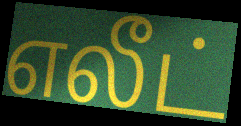
எலீட்